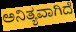
ಅನಿತ್ಯವಾಗಿದೆ